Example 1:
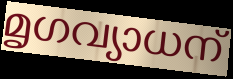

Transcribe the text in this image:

മൃഗവ്യാധന്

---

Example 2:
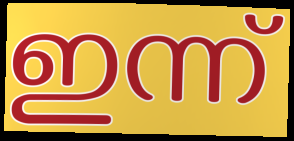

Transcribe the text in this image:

ഇന്ന്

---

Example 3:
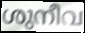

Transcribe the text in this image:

ശുനീവ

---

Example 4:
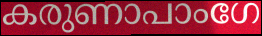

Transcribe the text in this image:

കരുണാപാംഗേ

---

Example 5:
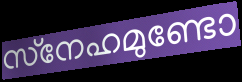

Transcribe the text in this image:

സ്‌നേഹമുണ്ടോ